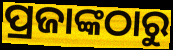
ପ୍ରଜାଙ୍କଠାରୁ